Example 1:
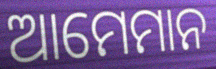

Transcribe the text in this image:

ଆମେମାନ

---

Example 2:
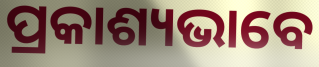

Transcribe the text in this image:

ପ୍ରକାଶ୍ୟଭାବେ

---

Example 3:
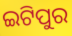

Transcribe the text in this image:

ଇଟିପୁର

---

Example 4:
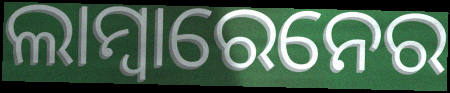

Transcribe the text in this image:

ଲାମ୍ବାରେନେର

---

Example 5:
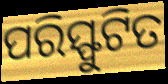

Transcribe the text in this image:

ପରିସ୍ଫୁଟିତ